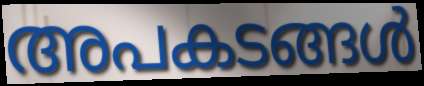
അപകടങ്ങൾ